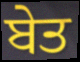
ਬੇਤ